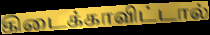
கிடைக்காவிட்டால்